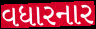
વધારનાર